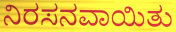
ನಿರಸನವಾಯಿತು